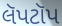
લૅપટૉપ